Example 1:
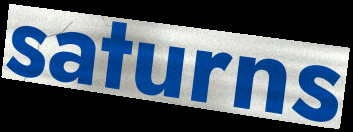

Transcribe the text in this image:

saturns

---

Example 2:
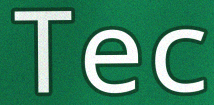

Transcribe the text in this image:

Tec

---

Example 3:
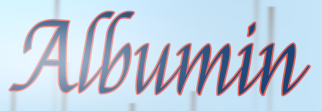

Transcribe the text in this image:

Albumin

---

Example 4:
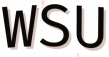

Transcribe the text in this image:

WSU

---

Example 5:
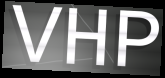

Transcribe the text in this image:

VHP